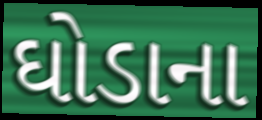
ઘોડાના